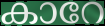
കാറേ